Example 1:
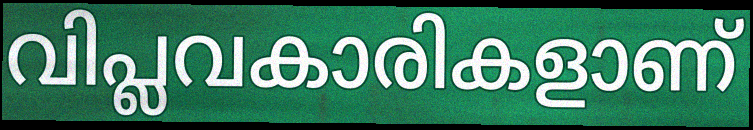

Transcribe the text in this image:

വിപ്ലവകാരികളാണ്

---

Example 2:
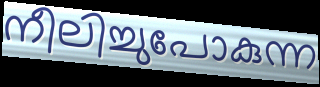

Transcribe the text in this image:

നീലിച്ചുപോകുന്ന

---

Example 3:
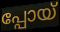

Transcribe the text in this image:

പ്പോയ്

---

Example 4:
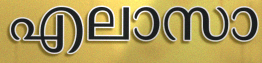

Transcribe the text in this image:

എലാസാ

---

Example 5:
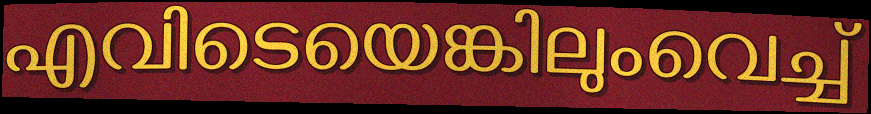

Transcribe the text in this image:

എവിടെയെങ്കിലുംവെച്ച്